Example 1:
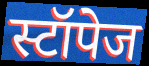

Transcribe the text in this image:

स्टॉपेज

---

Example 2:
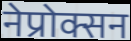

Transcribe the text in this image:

नेप्रोक्सन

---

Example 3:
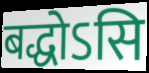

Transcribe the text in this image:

बद्धोऽसि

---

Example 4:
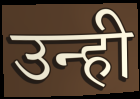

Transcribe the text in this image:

उन्ही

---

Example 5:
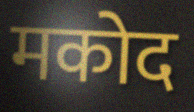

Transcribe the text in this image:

मकोद